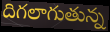
దిగలాగుతున్న